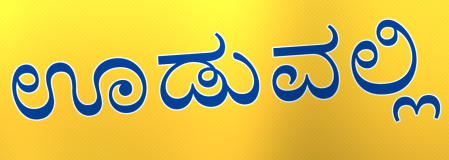
ಊಡುವಲ್ಲಿ